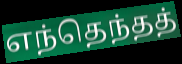
எந்தெந்தத்